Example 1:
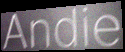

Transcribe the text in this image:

Andie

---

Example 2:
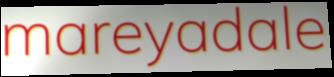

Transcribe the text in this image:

mareyadale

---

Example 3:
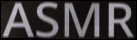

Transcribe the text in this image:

ASMR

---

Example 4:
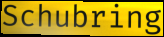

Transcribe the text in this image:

Schubring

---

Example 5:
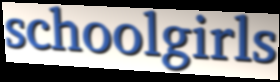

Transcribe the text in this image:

schoolgirls